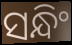
ସନ୍ଧିଂ